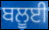
ਬਲੂਈ